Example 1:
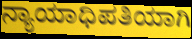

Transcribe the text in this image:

ನ್ಯಾಯಾಧಿಪತಿಯಾಗಿ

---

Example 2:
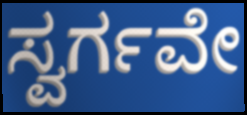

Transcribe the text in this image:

ಸ್ವರ್ಗವೇ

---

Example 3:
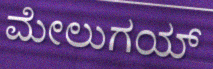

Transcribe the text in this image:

ಮೇಲುಗಯ್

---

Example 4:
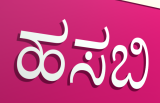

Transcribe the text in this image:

ಹಸಬಿ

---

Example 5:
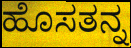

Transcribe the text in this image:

ಹೊಸತನ್ನ